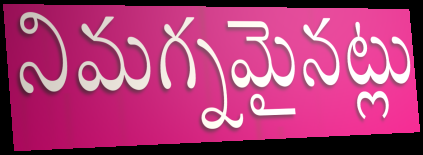
నిమగ్నమైనట్లు